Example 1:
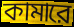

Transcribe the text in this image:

কামারে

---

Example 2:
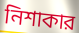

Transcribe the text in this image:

নিশাকার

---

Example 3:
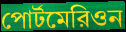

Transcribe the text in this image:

পোর্টমেরিওন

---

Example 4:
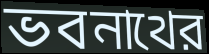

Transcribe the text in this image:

ভবনাথের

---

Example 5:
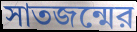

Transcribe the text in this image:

সাতজন্মের